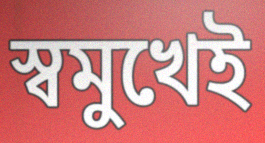
স্বমুখেই